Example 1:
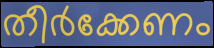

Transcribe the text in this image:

തീർക്കേണം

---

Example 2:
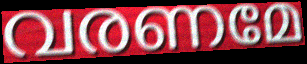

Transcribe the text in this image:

വരണമേ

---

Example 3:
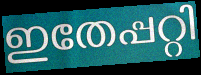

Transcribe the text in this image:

ഇതേപ്പറ്റി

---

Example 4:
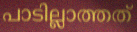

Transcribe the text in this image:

പാടില്ലാത്തത്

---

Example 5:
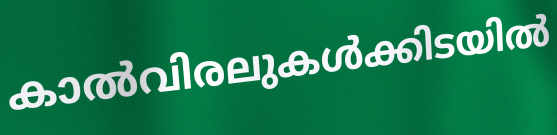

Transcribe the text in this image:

കാൽവിരലുകൾക്കിടയിൽ